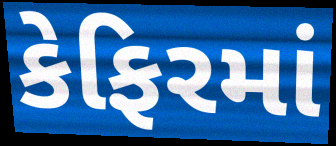
કેફિરમાં